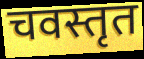
चवस्तृत